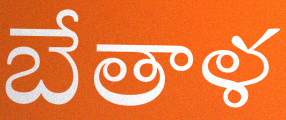
బేతాళ